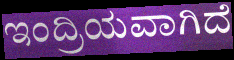
ಇಂದ್ರಿಯವಾಗಿದೆ